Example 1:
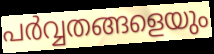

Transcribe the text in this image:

പർവ്വതങ്ങളെയും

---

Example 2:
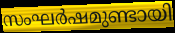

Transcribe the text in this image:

സംഘർഷമുണ്ടായി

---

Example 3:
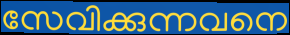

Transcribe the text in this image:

സേവിക്കുന്നവനെ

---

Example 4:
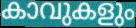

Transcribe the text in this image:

കാവുകളും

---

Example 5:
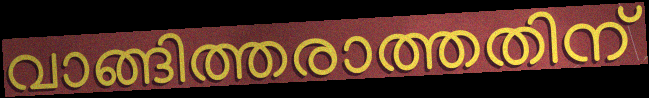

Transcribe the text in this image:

വാങ്ങിത്തരാത്തതിന്